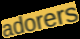
adorers